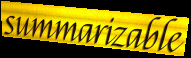
summarizable